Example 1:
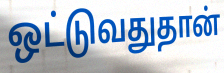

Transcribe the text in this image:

ஒட்டுவதுதான்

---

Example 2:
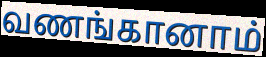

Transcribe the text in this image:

வணங்கானாம்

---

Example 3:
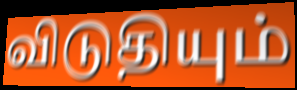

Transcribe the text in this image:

விடுதியும்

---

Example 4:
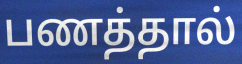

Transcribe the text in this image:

பணத்தால்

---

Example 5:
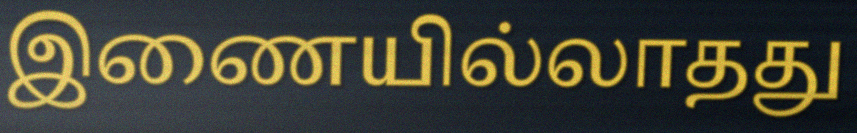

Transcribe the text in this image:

இணையில்லாதது